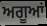
ਅਗੂਆਂ